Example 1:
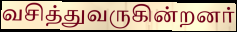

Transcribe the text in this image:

வசித்துவருகின்றனர்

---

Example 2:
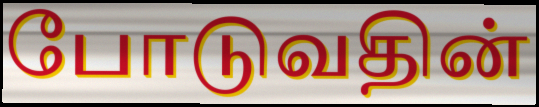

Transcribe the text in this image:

போடுவதின்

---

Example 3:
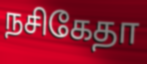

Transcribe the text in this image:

நசிகேதா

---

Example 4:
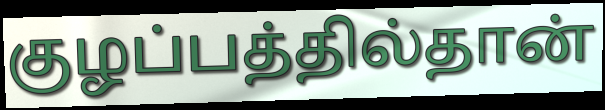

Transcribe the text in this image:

குழப்பத்தில்தான்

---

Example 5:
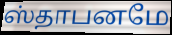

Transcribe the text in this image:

ஸ்தாபனமே